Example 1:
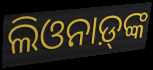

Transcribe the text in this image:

ଲିଓନାଡ଼୍‌ଙ୍କ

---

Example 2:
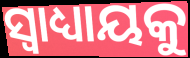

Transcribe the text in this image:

ସ୍ୱାଧ୍ୟାୟକୁ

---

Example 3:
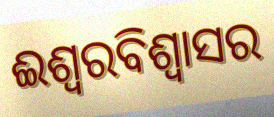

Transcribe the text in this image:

ଈଶ୍ୱରବିଶ୍ୱାସର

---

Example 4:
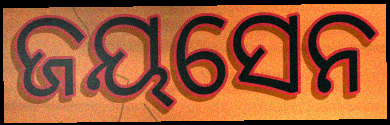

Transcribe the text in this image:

ଜୟସେନ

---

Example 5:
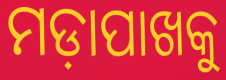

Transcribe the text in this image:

ମଡ଼ାପାଖକୁ